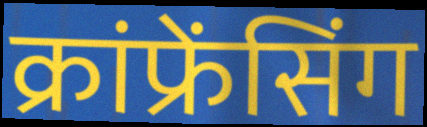
क्रांफ्रेंसिंग